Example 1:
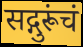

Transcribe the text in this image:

सद्गुरूंचं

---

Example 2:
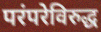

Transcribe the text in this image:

परंपरेविरुद्ध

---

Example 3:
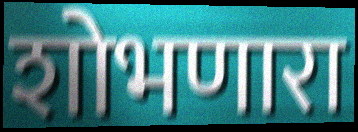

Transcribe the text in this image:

शोभणारा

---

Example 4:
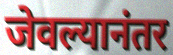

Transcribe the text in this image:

जेवल्यानंतर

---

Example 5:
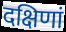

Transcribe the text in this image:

दक्षिणां